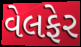
વેલફેર